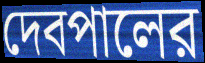
দেবপালের